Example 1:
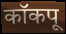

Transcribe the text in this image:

कॉकपू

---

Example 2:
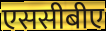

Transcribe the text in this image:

एससीबीए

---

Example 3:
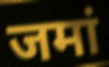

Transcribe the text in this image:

जमां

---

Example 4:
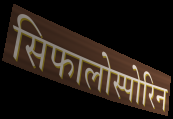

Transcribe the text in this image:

सिफालोस्पोरिन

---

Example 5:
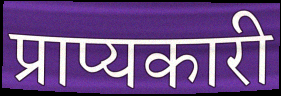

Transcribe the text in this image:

प्राप्यकारी